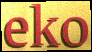
eko